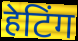
हेटिंग